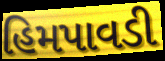
હિમપાવડી